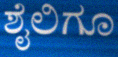
ಶೈಲಿಗೂ